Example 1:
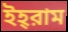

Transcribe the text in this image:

ইহ্‌রাম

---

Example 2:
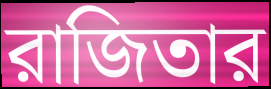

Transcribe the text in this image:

রাজিতার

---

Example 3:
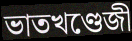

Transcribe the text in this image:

ভাতখণ্ডেজী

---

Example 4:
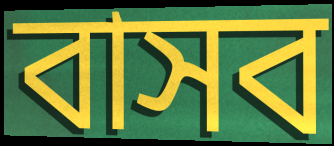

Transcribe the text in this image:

বাসব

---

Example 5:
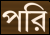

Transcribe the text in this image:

পরি